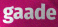
gaade